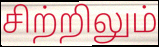
சிற்றிலும்